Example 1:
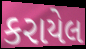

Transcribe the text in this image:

કરાયેલ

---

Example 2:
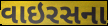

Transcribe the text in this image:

વાઇરસના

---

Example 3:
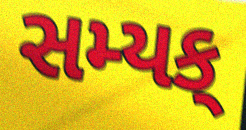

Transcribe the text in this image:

સમ્યક્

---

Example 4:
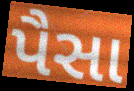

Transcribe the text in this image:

પૈસા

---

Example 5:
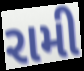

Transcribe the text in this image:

રામી